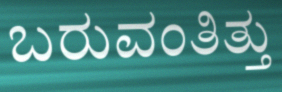
ಬರುವಂತಿತ್ತು